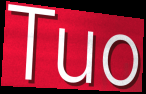
Tuo